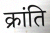
क्रांति